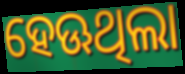
ହେଊଥିଲା